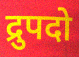
द्रुपदो